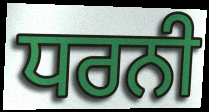
ਧਰਨੀ